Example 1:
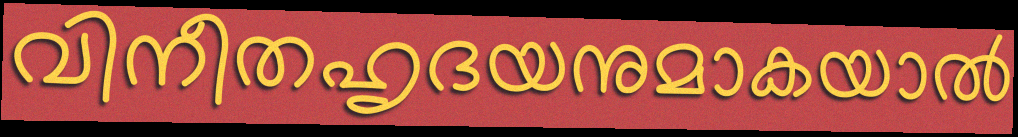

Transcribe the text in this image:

വിനീതഹൃദയനുമാകയാൽ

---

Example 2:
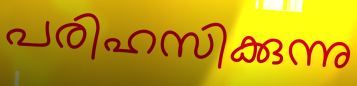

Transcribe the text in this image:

പരിഹസിക്കുന്നു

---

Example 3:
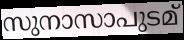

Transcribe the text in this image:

സുനാസാപുടമ്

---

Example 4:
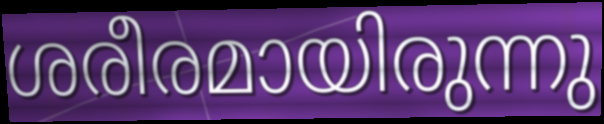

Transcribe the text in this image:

ശരീരമായിരുന്നു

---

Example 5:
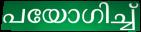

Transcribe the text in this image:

പയോഗിച്ച്